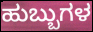
ಹುಬ್ಬುಗಳ